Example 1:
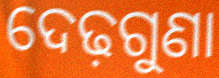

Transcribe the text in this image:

ଦେଢ଼ଗୁଣା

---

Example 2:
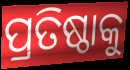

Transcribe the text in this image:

ପ୍ରତିଷ୍ଠାକୁ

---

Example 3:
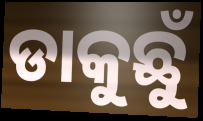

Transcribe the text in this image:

ଡାକୁଛୁଁ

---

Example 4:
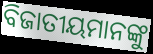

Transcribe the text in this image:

ବିଜାତୀୟମାନଙ୍କୁ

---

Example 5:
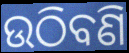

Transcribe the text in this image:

ଉଠିବଣି